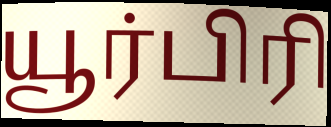
யூர்பிரி